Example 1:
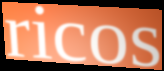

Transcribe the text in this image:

ricos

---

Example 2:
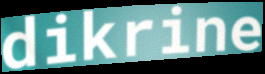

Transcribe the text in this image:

dikrine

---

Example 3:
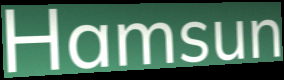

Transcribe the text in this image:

Hamsun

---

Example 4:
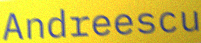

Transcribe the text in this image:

Andreescu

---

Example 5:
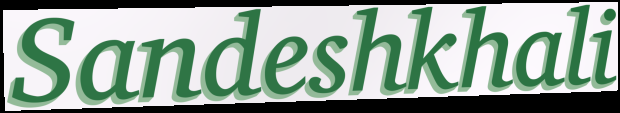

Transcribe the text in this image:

Sandeshkhali